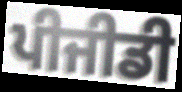
ਪੀਜੀਡੀ